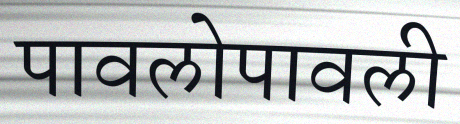
पावलोपावली